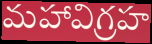
మహావిగ్రహ